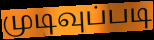
முடிவுப்படி